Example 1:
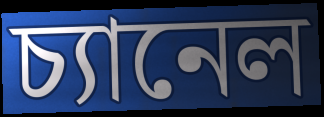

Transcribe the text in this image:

চ্যানেল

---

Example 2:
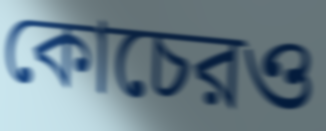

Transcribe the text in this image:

কোচেরও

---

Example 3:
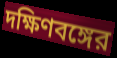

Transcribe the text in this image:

দক্ষিণবঙ্গের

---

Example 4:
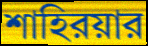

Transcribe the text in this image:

শাহিরয়ার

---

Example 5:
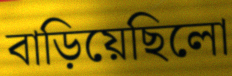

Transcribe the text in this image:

বাড়িয়েছিলো